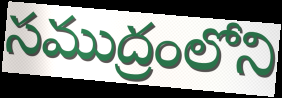
సముద్రంలోని